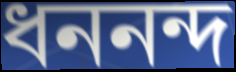
ধননন্দ